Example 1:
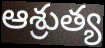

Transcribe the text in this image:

ఆశ్రుత్య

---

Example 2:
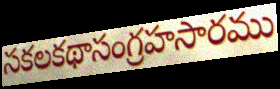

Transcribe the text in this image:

సకలకథాసంగ్రహసారము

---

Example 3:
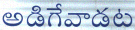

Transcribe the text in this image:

అడిగేవాడట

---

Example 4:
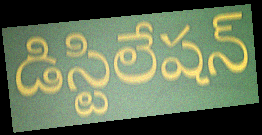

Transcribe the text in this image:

డిస్టిలేషన్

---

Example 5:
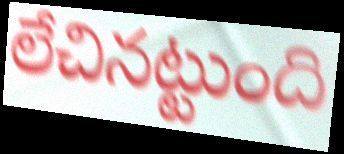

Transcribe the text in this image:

లేచినట్టుంది